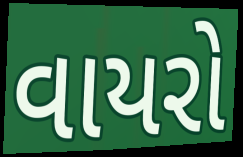
વાયરો